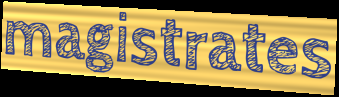
magistrates